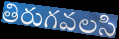
తిరుగవలసి